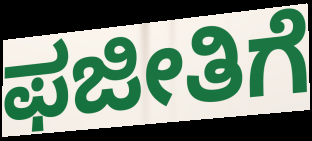
ಫಜೀತಿಗೆ